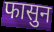
फासुन